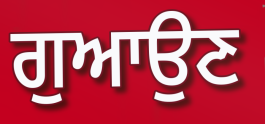
ਗੁਆਉਣ